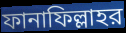
ফানাফিল্লাহর